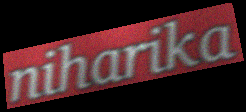
niharika